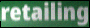
retailing